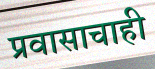
प्रवासाचाही